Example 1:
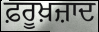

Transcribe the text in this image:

ਫ਼ਰੂਖ਼ਜ਼ਾਦ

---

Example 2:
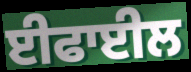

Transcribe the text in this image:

ਈਫਾਈਲ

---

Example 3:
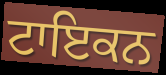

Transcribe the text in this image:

ਟਾਇਕਨ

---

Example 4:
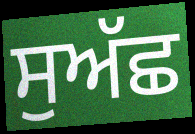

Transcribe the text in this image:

ਸੁਅੱਛ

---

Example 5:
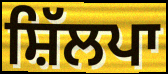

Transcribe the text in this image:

ਸ਼ਿੱਲਪਾ